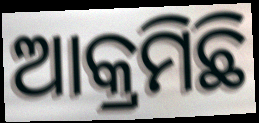
ଆକ୍ରମିଛି